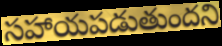
సహాయపడుతుందని